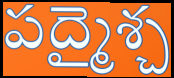
పద్మైశ్చ